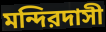
মন্দিরদাসী